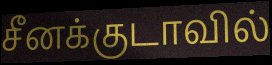
சீனக்குடாவில்